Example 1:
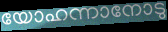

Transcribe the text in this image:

യോഹന്നാനോടു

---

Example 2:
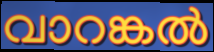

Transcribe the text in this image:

വാറങ്കൽ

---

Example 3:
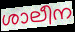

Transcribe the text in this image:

ശാലീന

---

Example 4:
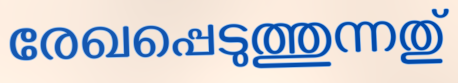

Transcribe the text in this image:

രേഖപ്പെടുത്തുന്നതു്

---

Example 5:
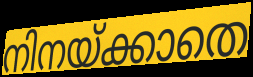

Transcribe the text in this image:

നിനയ്ക്കാതെ